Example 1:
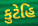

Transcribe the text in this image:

કુટેહિ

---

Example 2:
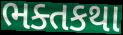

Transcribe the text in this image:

ભક્તકથા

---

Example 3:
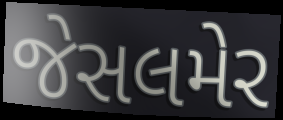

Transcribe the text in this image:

જેસલમેર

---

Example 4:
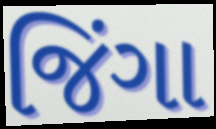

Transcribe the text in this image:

જિંગા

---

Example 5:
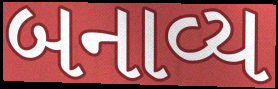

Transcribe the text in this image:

બનાવ્ય